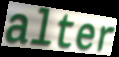
alter